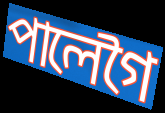
পালেগৈ